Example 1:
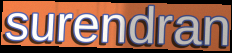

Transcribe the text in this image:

surendran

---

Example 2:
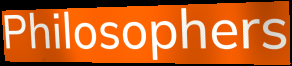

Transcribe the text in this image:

Philosophers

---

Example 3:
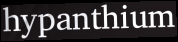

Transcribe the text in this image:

hypanthium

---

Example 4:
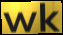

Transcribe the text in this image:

wk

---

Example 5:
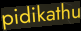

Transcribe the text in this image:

pidikathu